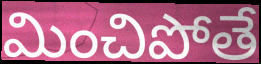
మించిపోతే